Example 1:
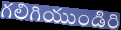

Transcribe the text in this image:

గలిగియుండిరి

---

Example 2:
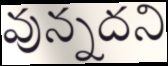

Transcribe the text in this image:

వున్నదని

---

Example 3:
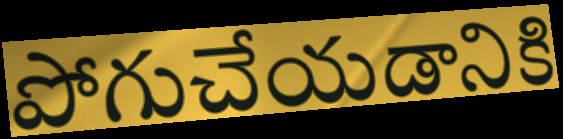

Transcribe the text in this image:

పోగుచేయడానికి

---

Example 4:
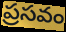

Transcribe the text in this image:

ప్రసవం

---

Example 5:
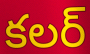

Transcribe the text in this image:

కలర్